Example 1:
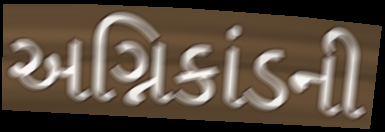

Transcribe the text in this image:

અગ્નિકાંડની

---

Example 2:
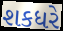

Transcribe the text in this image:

શકધરે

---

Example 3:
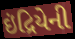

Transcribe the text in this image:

ઇંદ્રિયેની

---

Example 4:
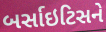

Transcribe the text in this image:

બર્સાઇટિસને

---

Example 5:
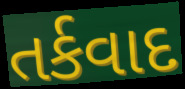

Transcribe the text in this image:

તર્કવાદ